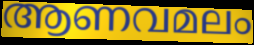
ആണവമലം